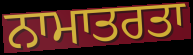
ਨਾਮਾਤਰਤਾ